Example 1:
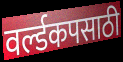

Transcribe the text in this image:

वर्ल्डकपसाठी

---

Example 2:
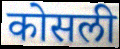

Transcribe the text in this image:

कोसली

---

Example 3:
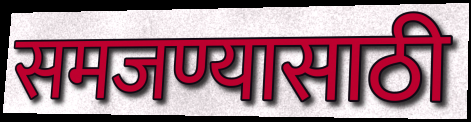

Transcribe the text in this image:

समजण्यासाठी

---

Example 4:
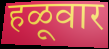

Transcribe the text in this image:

हळूवार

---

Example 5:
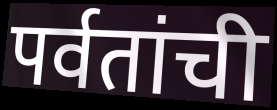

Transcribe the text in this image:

पर्वतांची